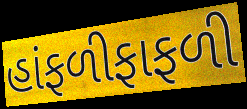
હાંફળીફાફળી